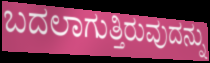
ಬದಲಾಗುತ್ತಿರುವುದನ್ನು